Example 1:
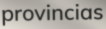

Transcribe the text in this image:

provincias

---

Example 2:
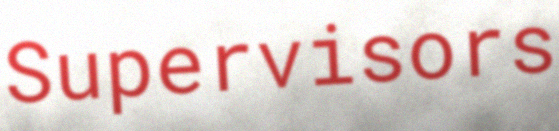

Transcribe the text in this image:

Supervisors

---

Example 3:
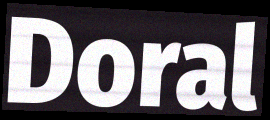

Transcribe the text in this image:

Doral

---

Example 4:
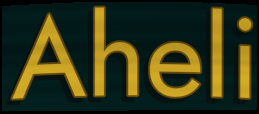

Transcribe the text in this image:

Aheli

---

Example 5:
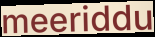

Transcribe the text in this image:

meeriddu